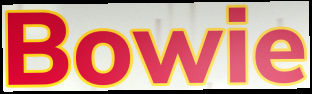
Bowie